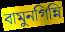
বামুনগিন্নি